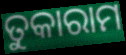
ତୁକାରାମ